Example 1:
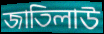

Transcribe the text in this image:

জাতিলাউ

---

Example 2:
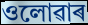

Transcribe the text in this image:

ওলোৱাৰ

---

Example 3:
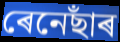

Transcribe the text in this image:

ৰেনেছাঁৰ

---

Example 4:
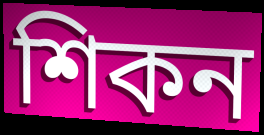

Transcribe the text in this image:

শিকন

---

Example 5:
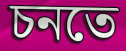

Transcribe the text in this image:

চনতে